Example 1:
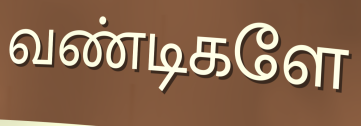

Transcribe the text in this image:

வண்டிகளே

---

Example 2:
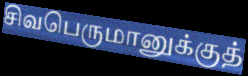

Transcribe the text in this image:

சிவபெருமானுக்குத்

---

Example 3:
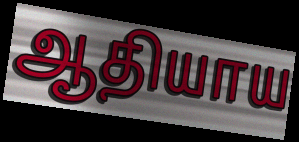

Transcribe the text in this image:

ஆதியாய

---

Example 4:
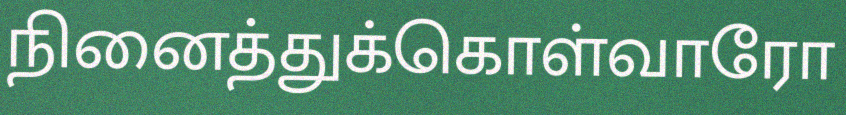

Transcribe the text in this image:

நினைத்துக்கொள்வாரோ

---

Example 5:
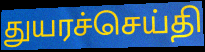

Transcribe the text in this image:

துயரச்செய்தி